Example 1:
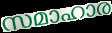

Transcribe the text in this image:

സമാഹാര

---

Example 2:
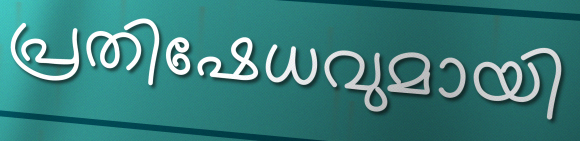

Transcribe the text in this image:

പ്രതിഷേധവുമായി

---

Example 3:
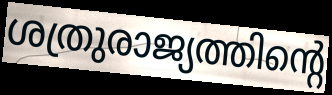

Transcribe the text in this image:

ശത്രുരാജ്യത്തിന്റെ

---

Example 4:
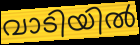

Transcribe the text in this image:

വാടിയിൽ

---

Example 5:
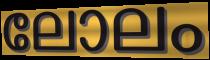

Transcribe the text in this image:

ലോലം